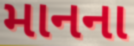
માનના